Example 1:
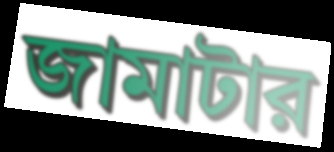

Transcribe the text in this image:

জামাটার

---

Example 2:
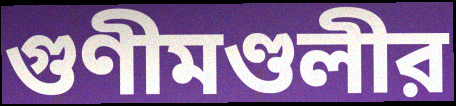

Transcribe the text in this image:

গুণীমণ্ডলীর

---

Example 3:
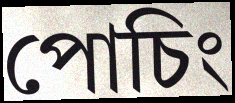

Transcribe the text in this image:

পোচিং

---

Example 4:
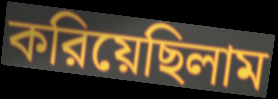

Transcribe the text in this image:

করিয়েছিলাম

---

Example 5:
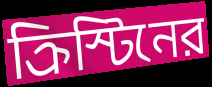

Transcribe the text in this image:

ক্রিস্টিনের